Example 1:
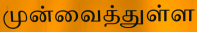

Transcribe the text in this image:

முன்வைத்துள்ள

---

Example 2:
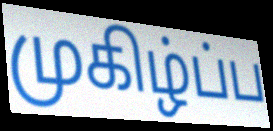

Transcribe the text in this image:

முகிழ்ப்ப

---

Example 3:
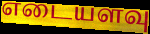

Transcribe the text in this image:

எடையளவு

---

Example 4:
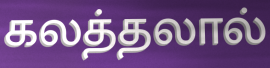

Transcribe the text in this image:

கலத்தலால்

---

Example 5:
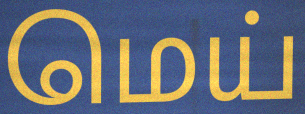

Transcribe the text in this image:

மெய்